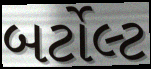
બર્ટોલ્ટ